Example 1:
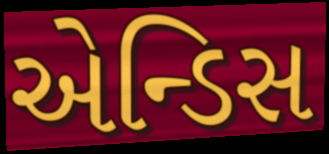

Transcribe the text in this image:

એન્ડિસ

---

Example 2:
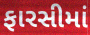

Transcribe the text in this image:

ફારસીમાં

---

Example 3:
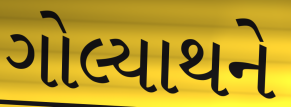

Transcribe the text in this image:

ગોલ્યાથને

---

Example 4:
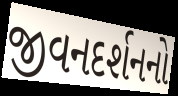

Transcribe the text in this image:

જીવનદર્શનનો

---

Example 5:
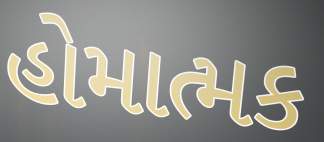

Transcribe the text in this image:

હોમાત્મક